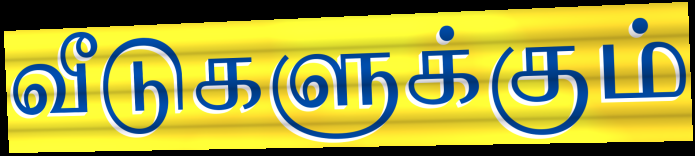
வீடுகளுக்கும்